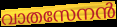
വാതസേനൻ